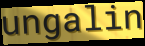
ungalin